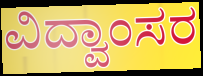
ವಿದ್ವಾಂಸರ